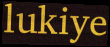
lukiye